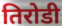
तिरोडी